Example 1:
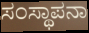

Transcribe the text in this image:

ಸಂಸ್ಥಾಪನಾ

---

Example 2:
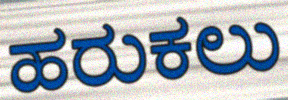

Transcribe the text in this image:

ಹರುಕಲು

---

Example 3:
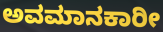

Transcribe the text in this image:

ಅವಮಾನಕಾರೀ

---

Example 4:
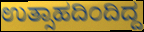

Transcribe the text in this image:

ಉತ್ಸಾಹದಿಂದಿದ್ದ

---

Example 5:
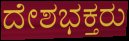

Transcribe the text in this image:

ದೇಶಭಕ್ತರು